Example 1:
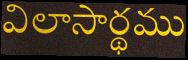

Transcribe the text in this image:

విలాసార్థము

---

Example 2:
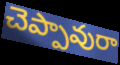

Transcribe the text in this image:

చెప్పావురా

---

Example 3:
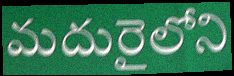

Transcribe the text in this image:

మదురైలోని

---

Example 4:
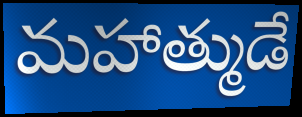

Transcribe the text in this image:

మహాత్ముడే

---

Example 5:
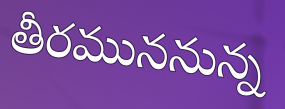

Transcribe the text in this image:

తీరముననున్న